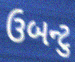
ઉબન્ટુ